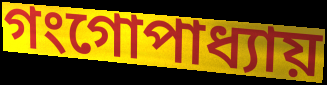
গংগোপাধ্যায়